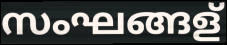
സംഘങ്ങള്